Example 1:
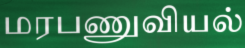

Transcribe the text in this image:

மரபணுவியல்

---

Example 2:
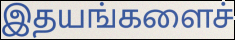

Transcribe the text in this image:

இதயங்களைச்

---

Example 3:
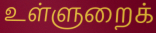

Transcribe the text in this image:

உள்ளுறைக்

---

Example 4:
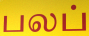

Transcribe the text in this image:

பலப்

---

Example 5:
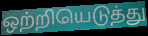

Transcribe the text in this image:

ஒற்றியெடுத்து